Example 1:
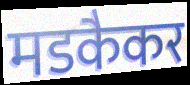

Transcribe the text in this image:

मडकैकर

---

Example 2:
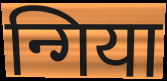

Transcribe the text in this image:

न्गिया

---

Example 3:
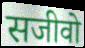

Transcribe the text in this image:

सजीवो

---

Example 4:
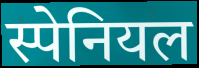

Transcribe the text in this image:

स्पेनियल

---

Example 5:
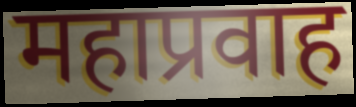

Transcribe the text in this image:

महाप्रवाह